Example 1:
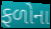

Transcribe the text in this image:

ફળોના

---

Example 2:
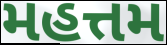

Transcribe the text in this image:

મહત્તમ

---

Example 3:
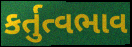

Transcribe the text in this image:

કર્તુત્વભાવ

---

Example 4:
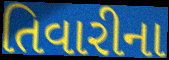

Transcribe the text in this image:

તિવારીના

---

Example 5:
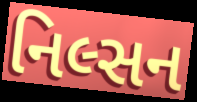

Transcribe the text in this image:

નિલ્સન